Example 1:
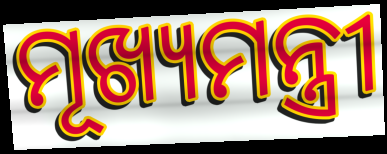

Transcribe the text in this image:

ମୂଖ୍ୟମନ୍ତ୍ରୀ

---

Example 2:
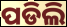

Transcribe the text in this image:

ପଡିଲି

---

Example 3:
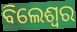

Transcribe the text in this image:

ବିଲେଶ୍ଵର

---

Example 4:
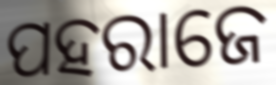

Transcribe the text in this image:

ପହରାଜେ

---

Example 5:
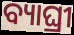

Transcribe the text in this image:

ବ୍ୟାଘ୍ରୀ